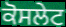
ਕੋਸਲੇਟ